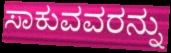
ಸಾಕುವವರನ್ನು